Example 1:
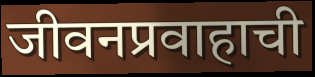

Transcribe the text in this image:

जीवनप्रवाहाची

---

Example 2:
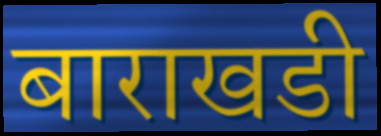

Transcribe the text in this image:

बाराखडी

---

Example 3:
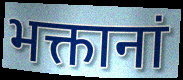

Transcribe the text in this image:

भक्तानां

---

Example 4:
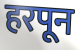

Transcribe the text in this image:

हरपून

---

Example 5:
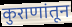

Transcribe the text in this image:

कुराणांतून